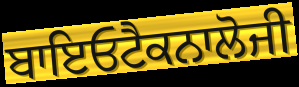
ਬਾਇਓਟੈਕਨਾਲੋਜੀ